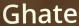
Ghate